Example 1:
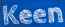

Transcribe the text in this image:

Keen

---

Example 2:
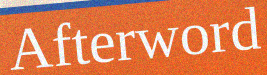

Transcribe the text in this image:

Afterword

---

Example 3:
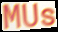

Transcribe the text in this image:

MUs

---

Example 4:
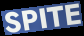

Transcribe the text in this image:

SPITE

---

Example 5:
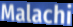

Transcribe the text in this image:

Malachi